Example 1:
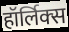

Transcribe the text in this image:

हॉर्लिक्‍स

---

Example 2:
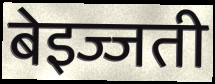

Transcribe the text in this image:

बेइज्‍जती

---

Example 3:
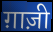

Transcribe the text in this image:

ग़ाज़ी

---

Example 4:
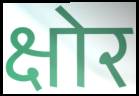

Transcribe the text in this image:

क्षोर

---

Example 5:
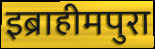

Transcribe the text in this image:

इब्राहीमपुरा